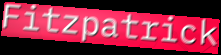
Fitzpatrick